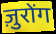
ज़ुरोंग